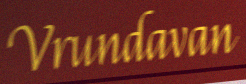
Vrundavan